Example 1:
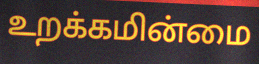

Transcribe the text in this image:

உறக்கமின்மை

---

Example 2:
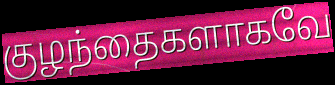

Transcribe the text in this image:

குழந்தைகளாகவே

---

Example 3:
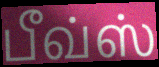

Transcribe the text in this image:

பீவ்ஸ்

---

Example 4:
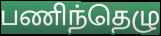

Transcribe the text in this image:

பணிந்தெழு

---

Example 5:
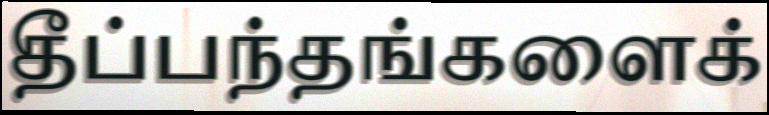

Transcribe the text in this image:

தீப்பந்தங்களைக்